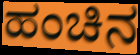
ಹಂಚಿನ